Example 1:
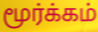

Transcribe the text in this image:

மூர்க்கம்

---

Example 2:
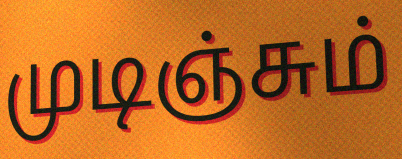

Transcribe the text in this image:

முடிஞ்சும்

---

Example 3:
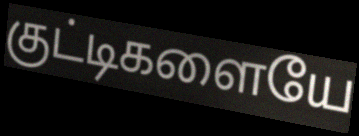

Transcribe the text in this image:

குட்டிகளையே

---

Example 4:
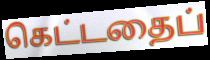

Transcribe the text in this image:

கெட்டதைப்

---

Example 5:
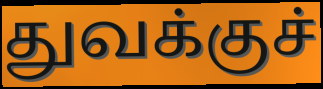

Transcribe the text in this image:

துவக்குச்